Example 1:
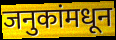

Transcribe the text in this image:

जनुकांमधून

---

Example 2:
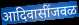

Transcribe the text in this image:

आदिवासींजवळ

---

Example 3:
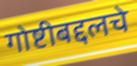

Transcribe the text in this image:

गोष्टीबद्दलचे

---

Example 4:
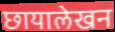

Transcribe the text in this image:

छायालेखन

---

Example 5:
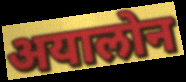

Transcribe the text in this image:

अयालोन